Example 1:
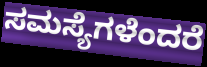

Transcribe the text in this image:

ಸಮಸ್ಯೆಗಳೆಂದರೆ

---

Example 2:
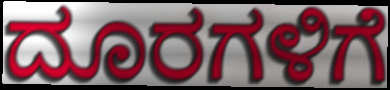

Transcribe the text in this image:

ದೂರಗಳಿಗೆ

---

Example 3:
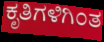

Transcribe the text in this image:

ಕೃತಿಗಳಿಗಿಂತ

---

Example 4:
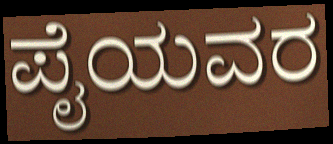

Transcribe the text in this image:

ಪೈಯವರ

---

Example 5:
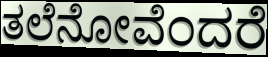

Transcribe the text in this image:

ತಲೆನೋವೆಂದರೆ